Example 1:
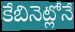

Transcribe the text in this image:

కేబినెట్లోనే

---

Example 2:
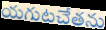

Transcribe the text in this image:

యగుటచేతను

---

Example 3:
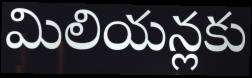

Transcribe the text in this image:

మిలియన్లకు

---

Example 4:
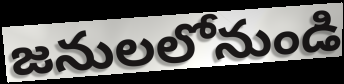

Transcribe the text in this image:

జనులలోనుండి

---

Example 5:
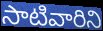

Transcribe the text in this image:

సాటివారిని